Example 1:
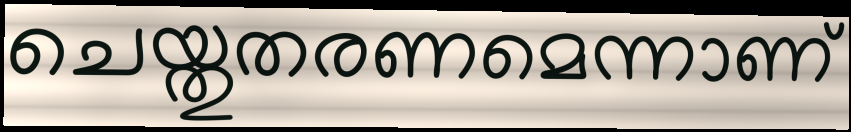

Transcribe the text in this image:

ചെയ്തുതരണമെന്നാണ്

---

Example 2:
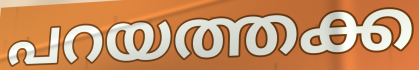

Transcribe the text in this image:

പറയത്തക്ക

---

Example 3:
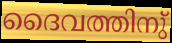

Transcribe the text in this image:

ദൈവത്തിനു്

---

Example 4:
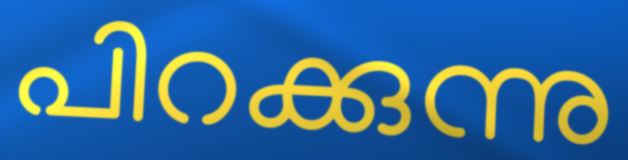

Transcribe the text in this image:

പിറക്കുന്നു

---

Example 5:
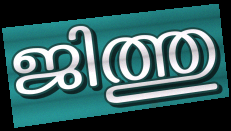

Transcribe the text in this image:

ജിത്തു